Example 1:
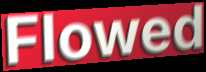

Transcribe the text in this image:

Flowed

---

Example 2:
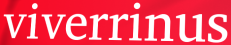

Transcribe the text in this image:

viverrinus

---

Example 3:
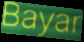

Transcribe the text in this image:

Bayar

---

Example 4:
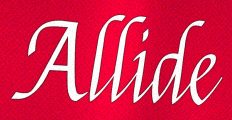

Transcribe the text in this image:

Allide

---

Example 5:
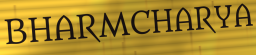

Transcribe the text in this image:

BHARMCHARYA